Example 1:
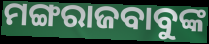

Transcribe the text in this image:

ମଙ୍ଗରାଜବାବୁଙ୍କ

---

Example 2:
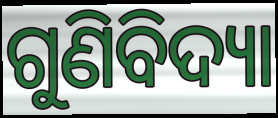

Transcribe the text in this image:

ଗୁଣିବିଦ୍ୟା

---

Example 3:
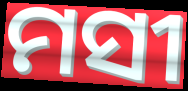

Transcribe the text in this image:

ମସୀ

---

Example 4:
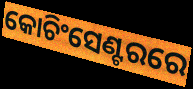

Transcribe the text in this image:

କୋଚିଂସେଣ୍ଟରରେ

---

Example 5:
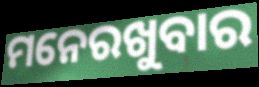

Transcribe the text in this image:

ମନେରଖୁବାର